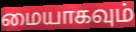
மையாகவும்